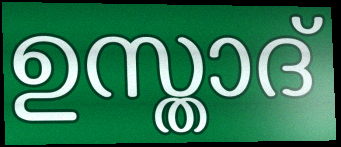
ഉസ്താദ്